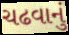
ચઢવાનું